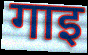
गाइ